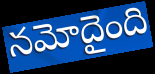
నమోదైంది